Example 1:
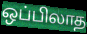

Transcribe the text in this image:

ஒப்பிலாத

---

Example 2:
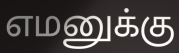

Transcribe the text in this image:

எமனுக்கு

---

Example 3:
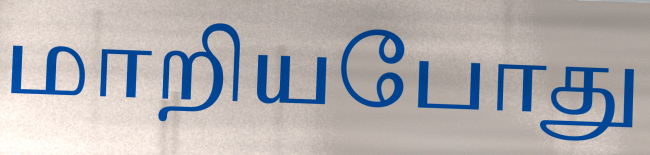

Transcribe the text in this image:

மாறியபோது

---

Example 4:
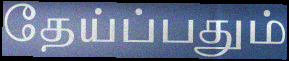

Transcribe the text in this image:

தேய்ப்பதும்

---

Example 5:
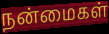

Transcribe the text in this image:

நன்மைகள்